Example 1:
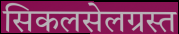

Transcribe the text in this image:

सिकलसेलग्रस्त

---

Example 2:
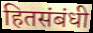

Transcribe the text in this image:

हितसंबंधी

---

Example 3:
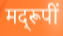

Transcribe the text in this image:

मद्‌रूपीं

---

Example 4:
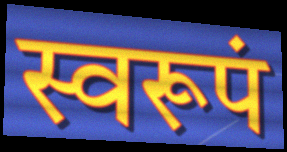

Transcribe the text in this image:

स्वरूपं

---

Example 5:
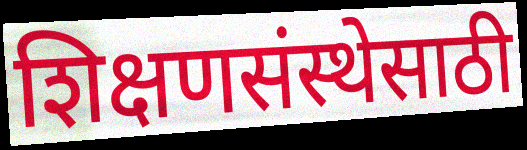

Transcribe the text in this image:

शिक्षणसंस्थेसाठी